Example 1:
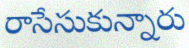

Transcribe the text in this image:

రాసేసుకున్నారు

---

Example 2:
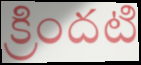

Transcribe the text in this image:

క్రిందటి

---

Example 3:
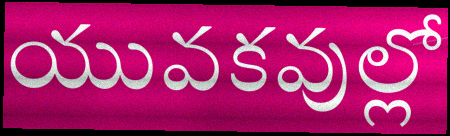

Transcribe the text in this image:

యువకవుల్లో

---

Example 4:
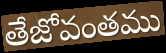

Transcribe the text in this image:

తేజోవంతము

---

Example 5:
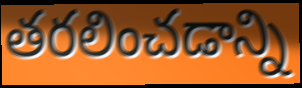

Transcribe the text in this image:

తరలించడాన్ని